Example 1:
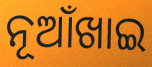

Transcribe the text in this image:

ନୂଆଁଖାଇ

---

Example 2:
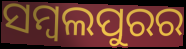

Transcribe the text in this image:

ସମ୍ୱଲପୁରର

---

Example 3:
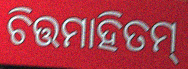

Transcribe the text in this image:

ଚିତ୍ତମାହିତମ୍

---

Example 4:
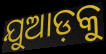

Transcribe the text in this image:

ଯୁଆଡ଼କୁ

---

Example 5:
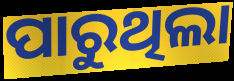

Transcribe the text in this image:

ପାରୁଥିଲା